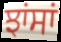
ਝਾਂਸਾਂ